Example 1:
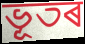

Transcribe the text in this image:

ভূতৰ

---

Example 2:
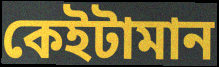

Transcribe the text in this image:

কেইটামান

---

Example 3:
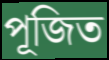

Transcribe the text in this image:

পূজিত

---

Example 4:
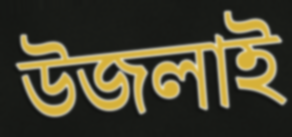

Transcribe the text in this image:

উজলাই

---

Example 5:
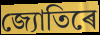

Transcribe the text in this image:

জ্যোতিৰে